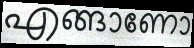
എങ്ങാണോ